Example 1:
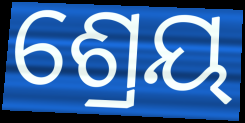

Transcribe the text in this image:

ଶ୍ରେୟ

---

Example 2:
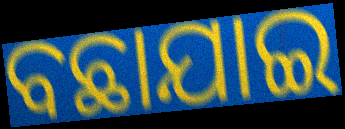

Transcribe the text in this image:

ବଛାଯାଇ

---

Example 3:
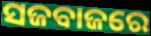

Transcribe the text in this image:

ସଜବାଜରେ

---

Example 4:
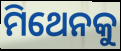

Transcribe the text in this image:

ମିଥେନକୁ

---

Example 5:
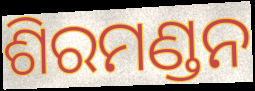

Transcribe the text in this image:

ଶିରମଣ୍ଡନ